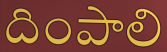
దింపాలి